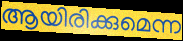
ആയിരിക്കുമെന്ന